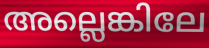
അല്ലെങ്കിലേ